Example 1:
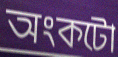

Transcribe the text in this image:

অংকটো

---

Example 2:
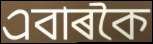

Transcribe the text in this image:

এবাৰকৈ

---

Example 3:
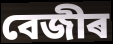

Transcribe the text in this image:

বেজীৰ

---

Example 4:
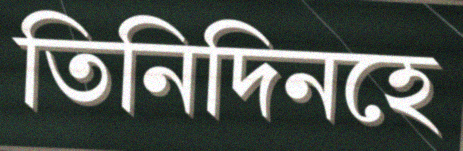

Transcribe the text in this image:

তিনিদিনহে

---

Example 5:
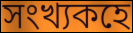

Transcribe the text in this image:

সংখ্যকহে